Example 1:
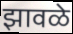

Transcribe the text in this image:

झावळे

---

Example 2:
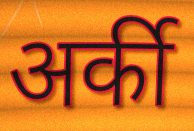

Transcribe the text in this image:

अर्की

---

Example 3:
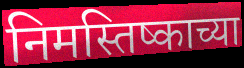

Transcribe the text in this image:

निमस्तिष्काच्या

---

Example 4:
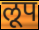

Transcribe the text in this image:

लूप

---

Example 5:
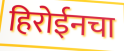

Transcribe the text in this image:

हिरोईनचा